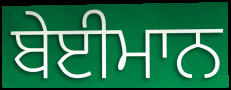
ਬੇਈਮਾਨ